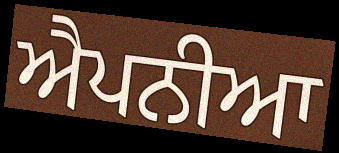
ਐਪਨੀਆ